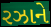
રઝાને